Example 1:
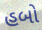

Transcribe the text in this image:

હબો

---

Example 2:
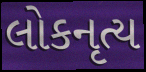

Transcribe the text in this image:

લોકનૃત્ય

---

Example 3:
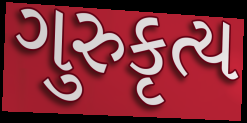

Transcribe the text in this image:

ગુરુકૃત્ય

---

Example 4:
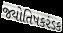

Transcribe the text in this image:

જ્યોતિષકરંડક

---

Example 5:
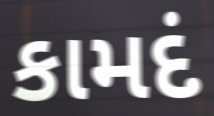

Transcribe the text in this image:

કામદં